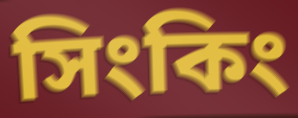
সিংকিং